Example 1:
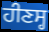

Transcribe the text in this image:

ਹੀਣਸ੍ਹ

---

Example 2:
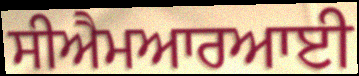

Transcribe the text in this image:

ਸੀਐਮਆਰਆਈ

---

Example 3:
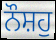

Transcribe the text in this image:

ਨੌਸ਼ਹੁ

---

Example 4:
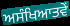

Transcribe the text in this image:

ਅਸੰਖਿਆਤਵੇਂ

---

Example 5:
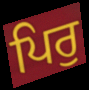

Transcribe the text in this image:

ਪਿਰੁ